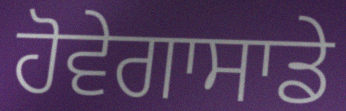
ਹੋਵੇਗਾਸਾਡੇ